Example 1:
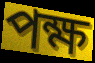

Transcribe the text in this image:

পক্ষ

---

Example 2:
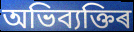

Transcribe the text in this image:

অভিব্যক্তিৰ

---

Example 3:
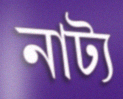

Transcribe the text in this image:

নাট্য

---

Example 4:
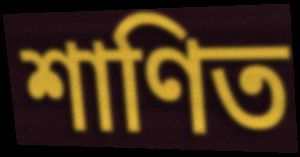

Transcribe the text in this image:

শাণিত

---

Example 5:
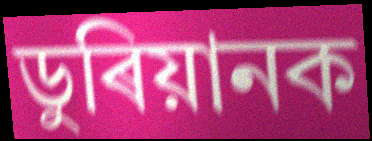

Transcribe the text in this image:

ডুৰিয়ানক